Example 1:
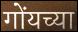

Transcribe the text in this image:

गोंयच्या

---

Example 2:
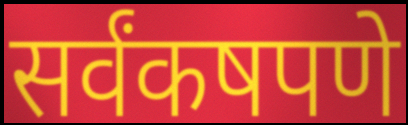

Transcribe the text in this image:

सर्वंकषपणे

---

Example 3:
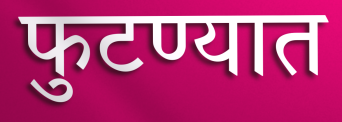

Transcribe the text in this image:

फुटण्यात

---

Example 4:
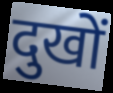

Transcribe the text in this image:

दुखों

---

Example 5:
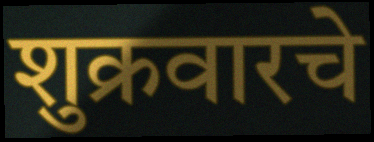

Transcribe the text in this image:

शुक्रवारचे